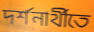
দর্শনার্থীতে